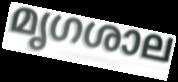
മൃഗശാല